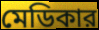
মেডিকার